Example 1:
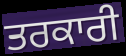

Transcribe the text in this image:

ਤਰਕਾਰੀ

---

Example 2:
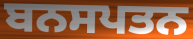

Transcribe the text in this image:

ਬਨਸਪਤਨ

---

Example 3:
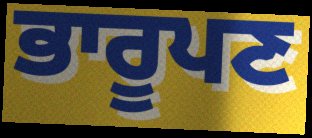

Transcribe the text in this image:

ਭਾਰੂਪਣ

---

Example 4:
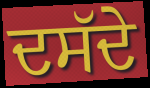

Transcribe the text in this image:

ਦਸੱਦੇ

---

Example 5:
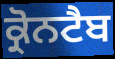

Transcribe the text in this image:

ਕ੍ਰੋਨਟੈਬ